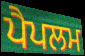
ਪੈਪਲਮ